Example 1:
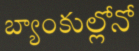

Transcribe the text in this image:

బ్యాంకుల్లోనో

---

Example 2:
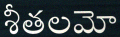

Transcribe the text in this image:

శీతలమో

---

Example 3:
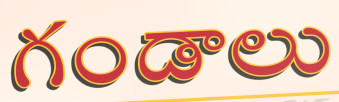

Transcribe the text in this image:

గండాలు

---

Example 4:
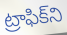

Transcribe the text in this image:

ట్రాఫిక్‌ని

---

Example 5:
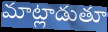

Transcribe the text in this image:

మాట్లాడుతూ